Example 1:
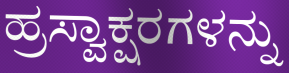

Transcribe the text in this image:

ಹ್ರಸ್ವಾಕ್ಷರಗಳನ್ನು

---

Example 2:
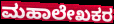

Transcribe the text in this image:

ಮಹಾಲೇಖಕರ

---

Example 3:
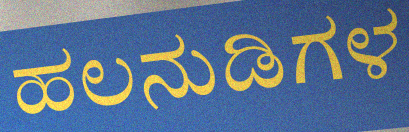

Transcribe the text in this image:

ಹಲನುಡಿಗಳ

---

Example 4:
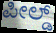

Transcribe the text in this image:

ಪೀಲ್ಡ್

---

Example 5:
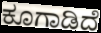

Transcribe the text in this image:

ಕೂಗಾಡಿದೆ